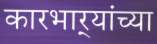
कारभार्यांच्या